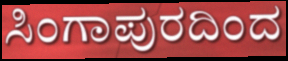
ಸಿಂಗಾಪುರದಿಂದ